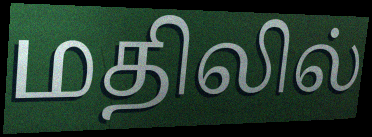
மதிலில்